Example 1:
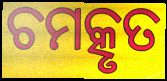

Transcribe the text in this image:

ଚମତ୍କୃତ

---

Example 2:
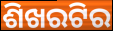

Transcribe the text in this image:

ଶିଖରଟିର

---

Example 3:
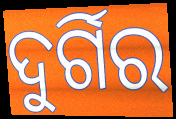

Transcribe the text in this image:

ଦୁର୍ଗିର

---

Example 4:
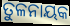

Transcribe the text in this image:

ତୁଳନାୟକ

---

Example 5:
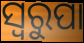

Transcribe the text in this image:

ସ୍ୱରୁପା